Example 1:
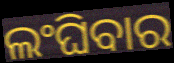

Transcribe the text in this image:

ଲଂଘିବାର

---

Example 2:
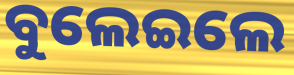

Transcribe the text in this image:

ବୁଲେଇଲେ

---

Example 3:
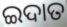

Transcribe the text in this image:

ଇଦାତ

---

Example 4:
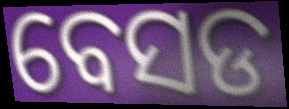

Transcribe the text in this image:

ବେସଡ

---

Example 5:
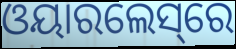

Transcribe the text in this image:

ଓୟାରଲେସ୍‌ରେ